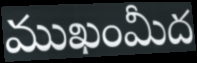
ముఖంమీద